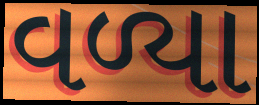
વળ્યા